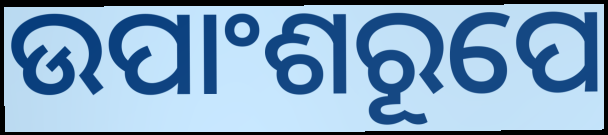
ଉପାଂଶରୂପେ